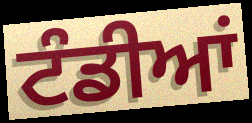
ਟੰਡੀਆਂ